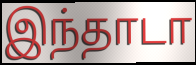
இந்தாடா